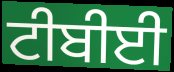
ਟੀਬੀਈ